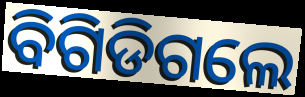
ବିଗିଡିଗଲେ